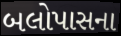
બલોપાસના